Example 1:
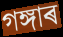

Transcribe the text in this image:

গঙ্গাৰ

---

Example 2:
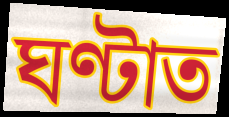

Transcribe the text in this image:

ঘণ্টাত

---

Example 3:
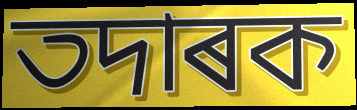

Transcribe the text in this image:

তদাৰক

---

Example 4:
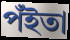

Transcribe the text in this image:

পঁইতা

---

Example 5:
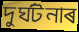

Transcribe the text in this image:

দুৰ্ঘটনাৰ